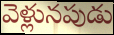
వెళ్లునపుడు